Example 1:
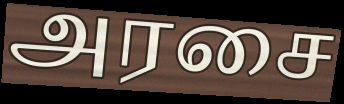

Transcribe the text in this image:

அரசை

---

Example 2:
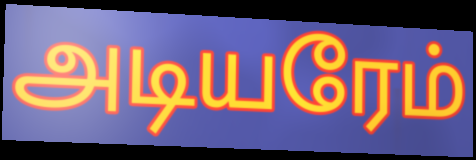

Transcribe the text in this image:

அடியரேம்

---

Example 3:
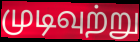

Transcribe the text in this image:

முடிவுற்று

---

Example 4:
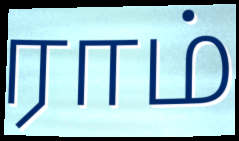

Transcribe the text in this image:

ராம்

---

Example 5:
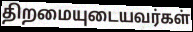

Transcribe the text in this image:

திறமையுடையவர்கள்